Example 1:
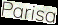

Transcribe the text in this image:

Parisa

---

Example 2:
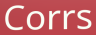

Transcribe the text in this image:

Corrs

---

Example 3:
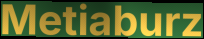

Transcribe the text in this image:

Metiaburz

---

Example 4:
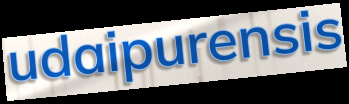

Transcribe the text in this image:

udaipurensis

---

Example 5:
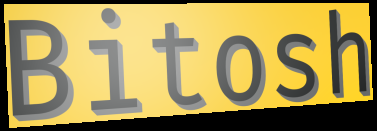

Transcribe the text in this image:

Bitosh